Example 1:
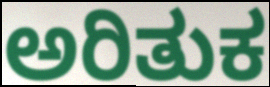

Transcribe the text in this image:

ಅರಿತುಕ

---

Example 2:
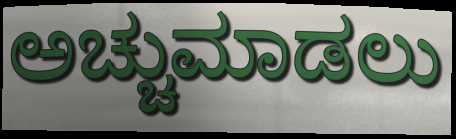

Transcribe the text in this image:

ಅಚ್ಚುಮಾಡಲು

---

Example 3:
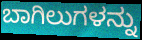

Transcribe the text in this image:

ಬಾಗಿಲುಗಳನ್ನು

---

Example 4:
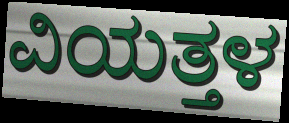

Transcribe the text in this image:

ವಿಯತ್ತಳ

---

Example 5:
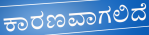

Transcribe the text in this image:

ಕಾರಣವಾಗಲಿದೆ